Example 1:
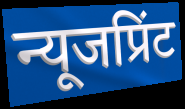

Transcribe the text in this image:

न्यूजप्रिंट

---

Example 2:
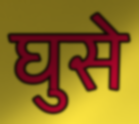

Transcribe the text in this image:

घुसे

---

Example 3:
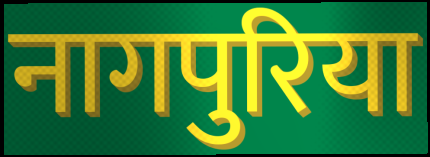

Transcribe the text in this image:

नागपुरिया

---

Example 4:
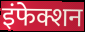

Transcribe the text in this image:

इंफेक्शन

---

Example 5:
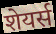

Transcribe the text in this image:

शेयर्स